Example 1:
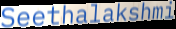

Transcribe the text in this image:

Seethalakshmi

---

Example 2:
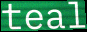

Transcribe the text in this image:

teal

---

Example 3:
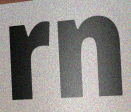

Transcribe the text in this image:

rn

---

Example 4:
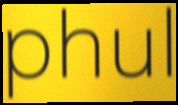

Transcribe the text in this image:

phul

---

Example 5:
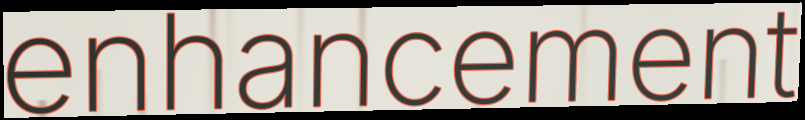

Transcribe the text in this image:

enhancement